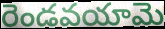
రెండవయామె